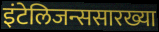
इंटेलिजन्ससारख्या